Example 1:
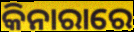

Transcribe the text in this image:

କିନାରାରେ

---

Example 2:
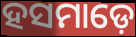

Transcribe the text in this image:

ହସମାଡ଼େ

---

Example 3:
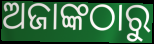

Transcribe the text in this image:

ଅଜାଙ୍କଠାରୁ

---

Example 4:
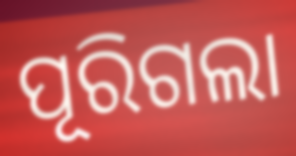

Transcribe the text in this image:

ପୂରିଗଲା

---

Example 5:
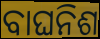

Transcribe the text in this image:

ବାଘନିଶ